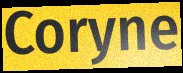
Coryne